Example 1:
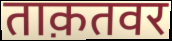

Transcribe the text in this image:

ताक़तवर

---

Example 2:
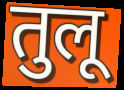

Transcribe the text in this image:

तुलू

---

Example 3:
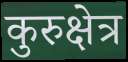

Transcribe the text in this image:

कुरुक्षेत्र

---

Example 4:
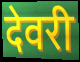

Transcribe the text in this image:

देवरी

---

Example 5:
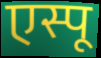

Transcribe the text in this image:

एस्पू